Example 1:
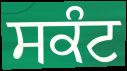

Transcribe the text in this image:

ਸਕੰਟ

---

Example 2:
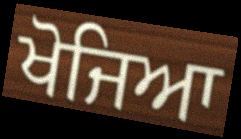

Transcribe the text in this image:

ਖੋਜਿਆ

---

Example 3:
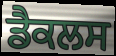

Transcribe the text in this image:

ਡੈਕਲਸ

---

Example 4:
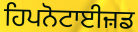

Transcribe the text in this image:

ਹਿਪਨੋਟਾਈਜ਼ਡ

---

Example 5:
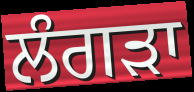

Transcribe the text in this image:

ਲੰਗੜਾ